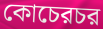
কোচেরচর